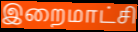
இறைமாட்சி